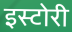
इस्टोरी